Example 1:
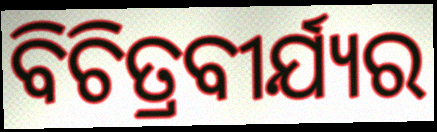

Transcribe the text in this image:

ବିଚିତ୍ରବୀର୍ଯ୍ୟର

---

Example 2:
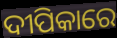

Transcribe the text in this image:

ଦୀପିକାରେ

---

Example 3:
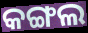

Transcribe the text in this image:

କଙ୍ଗଲ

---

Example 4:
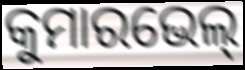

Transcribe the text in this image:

କୁମାରଭେଲ୍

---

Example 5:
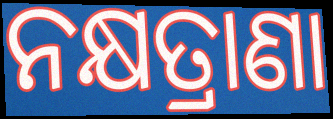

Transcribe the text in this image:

ନକ୍ଷତ୍ରାଣା